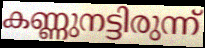
കണ്ണുനട്ടിരുന്ന്